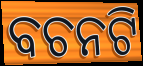
ବଚନଟି